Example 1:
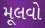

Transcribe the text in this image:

મૂલવો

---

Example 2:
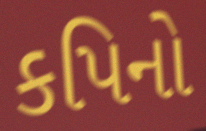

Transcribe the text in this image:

કપિનો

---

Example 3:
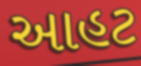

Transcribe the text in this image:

આહટ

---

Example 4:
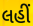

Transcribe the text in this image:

લહીં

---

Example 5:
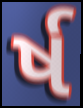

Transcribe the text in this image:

ર્ષ